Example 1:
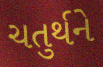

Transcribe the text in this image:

ચતુર્થને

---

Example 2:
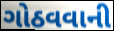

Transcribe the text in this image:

ગોઠવવાની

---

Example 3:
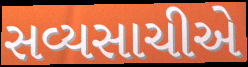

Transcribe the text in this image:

સવ્યસાચીએ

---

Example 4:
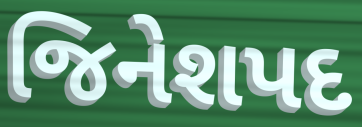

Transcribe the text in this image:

જિનેશપદ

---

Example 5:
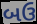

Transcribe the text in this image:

બઉ